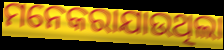
ମନେକରାଯାଉଥିଲା